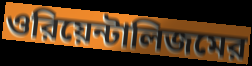
ওরিয়েন্টালিজমের